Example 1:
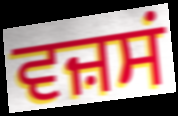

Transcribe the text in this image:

ਵਜ਼ਸਂ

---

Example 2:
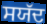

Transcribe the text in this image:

ਸਯੱਦ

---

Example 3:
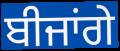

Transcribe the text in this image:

ਬੀਜਾਂਗੇ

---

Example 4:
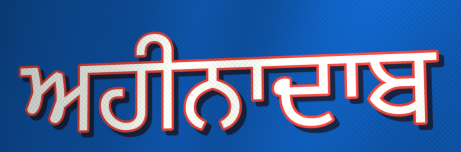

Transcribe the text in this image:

ਅਹੀਨਾਦਾਬ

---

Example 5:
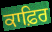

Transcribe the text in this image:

ਕਾਫ਼ਿਰ